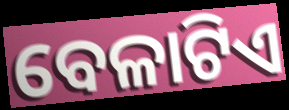
ବେଳାଟିଏ